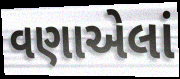
વણાએલાં